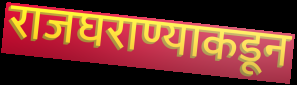
राजघराण्याकडून